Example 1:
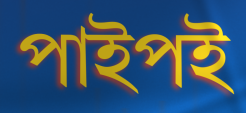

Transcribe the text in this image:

পাইপই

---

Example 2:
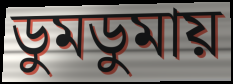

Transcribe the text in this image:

ডুমডুমায়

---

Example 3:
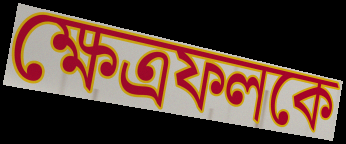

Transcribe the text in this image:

ক্ষেত্রফলকে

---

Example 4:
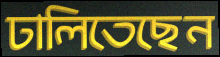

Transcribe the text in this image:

ঢালিতেছেন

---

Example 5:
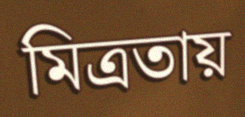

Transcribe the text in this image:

মিত্রতায়